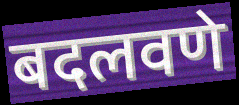
बदलवणे